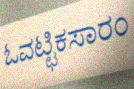
ಓವಟ್ಟಿಕಸಾರಂ